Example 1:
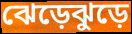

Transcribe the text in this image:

ঝেড়েঝুড়ে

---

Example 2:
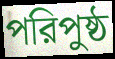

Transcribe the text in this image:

পরিপুষ্ঠ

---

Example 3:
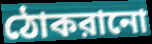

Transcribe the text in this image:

ঠোকরানো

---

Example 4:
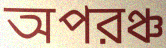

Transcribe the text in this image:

অপরঞ্চ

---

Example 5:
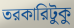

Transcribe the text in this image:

তরকারিটুকু